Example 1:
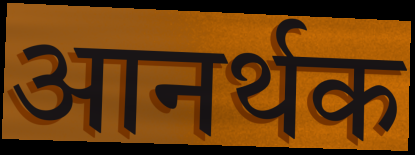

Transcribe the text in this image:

आनर्थक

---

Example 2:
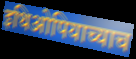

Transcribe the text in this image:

इथिओपियाच्याच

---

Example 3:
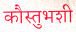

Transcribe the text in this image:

कौस्तुभशी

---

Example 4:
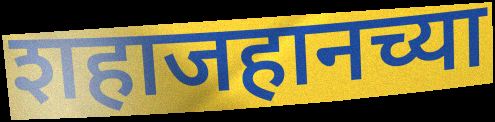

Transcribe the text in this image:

शहाजहानच्या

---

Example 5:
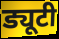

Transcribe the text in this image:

ड्यूटी